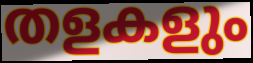
തളകളും